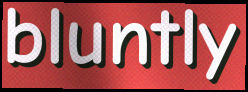
bluntly